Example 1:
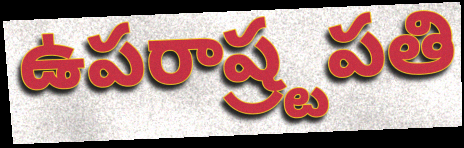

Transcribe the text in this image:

ఉపరాష్ర్టపతి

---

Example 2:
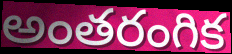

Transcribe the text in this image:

అంతరంగిక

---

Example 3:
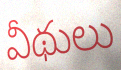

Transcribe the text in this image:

వీథులు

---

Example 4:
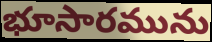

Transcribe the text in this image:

భూసారమును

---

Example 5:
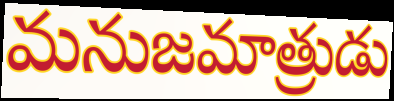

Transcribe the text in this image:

మనుజమాత్రుడు